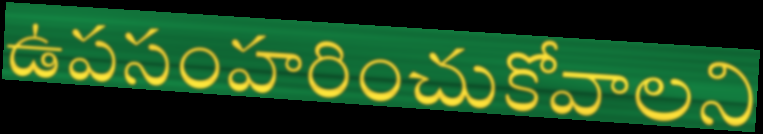
ఉపసంహరించుకోవాలని